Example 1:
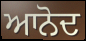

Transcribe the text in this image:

ਆਨੋਦ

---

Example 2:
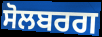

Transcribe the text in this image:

ਸੋਲਬਰਗ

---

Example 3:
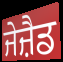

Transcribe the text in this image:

ਜੇਜ਼ੈਡ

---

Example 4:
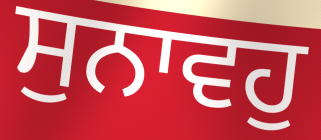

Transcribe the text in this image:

ਸੁਨਾਵਹੁ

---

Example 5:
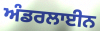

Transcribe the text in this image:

ਅੰਡਰਲਾਈਨ